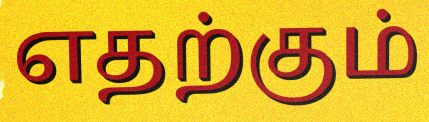
எதற்கும்